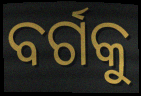
ବର୍ଗକୁ